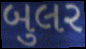
બુલર